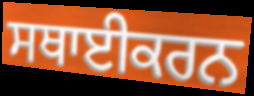
ਸਥਾਈਕਰਨ